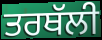
ਤਰਥੱਲੀ